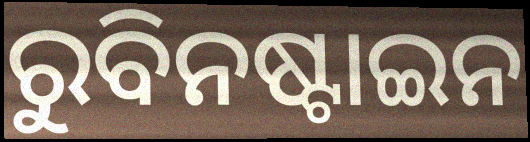
ରୁବିନଷ୍ଟାଇନ